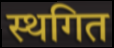
स्थगित